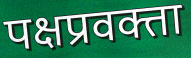
पक्षप्रवक्ता